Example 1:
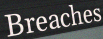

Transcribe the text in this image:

Breaches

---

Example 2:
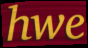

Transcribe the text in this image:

hwe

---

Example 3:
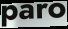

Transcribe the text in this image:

paro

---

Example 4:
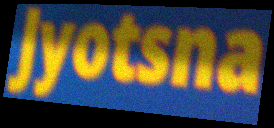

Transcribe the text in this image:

Jyotsna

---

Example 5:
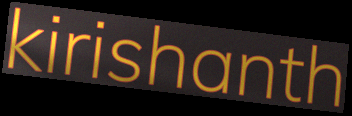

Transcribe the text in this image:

kirishanth